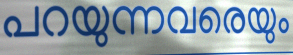
പറയുന്നവരെയും